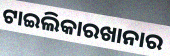
ଟାଇଲିକାରଖାନାର